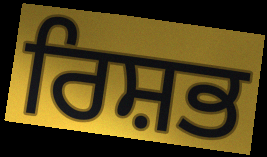
ਰਿਸ਼ਭ